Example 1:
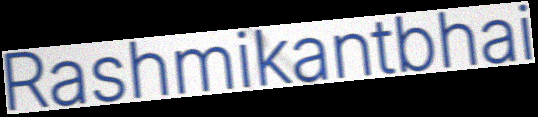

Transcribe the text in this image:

Rashmikantbhai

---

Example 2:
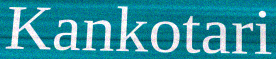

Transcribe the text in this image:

Kankotari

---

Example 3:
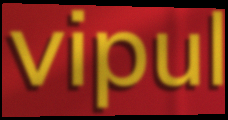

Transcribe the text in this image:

vipul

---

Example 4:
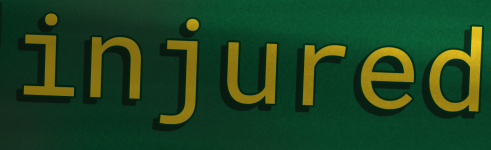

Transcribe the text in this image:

injured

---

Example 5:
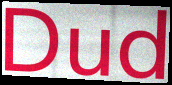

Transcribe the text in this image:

Dud